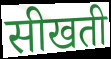
सीखती